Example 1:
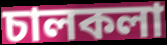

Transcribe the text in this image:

চালকলা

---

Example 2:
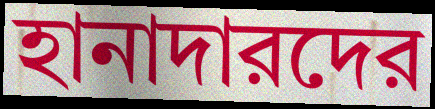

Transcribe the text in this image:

হানাদারদের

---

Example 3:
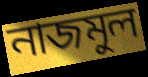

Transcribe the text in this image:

নাজমুল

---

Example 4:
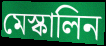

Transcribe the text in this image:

মেস্কালিন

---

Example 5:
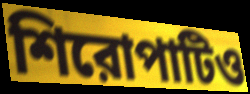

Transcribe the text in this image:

শিরোপাটিও